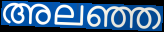
അലഞ്ഞ